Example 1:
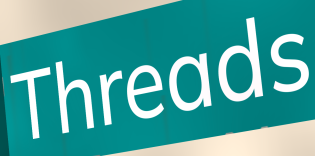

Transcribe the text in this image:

Threads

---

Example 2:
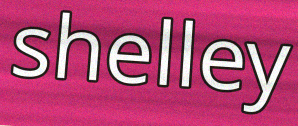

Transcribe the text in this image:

shelley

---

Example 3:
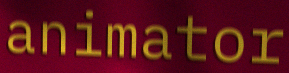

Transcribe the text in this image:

animator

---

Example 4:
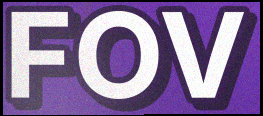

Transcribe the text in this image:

FOV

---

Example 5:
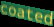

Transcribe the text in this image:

coated